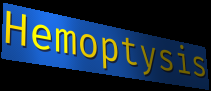
Hemoptysis